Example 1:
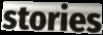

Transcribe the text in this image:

stories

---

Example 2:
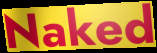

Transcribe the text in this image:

Naked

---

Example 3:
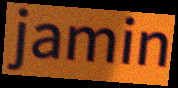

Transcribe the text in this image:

jamin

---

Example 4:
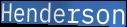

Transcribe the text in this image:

Henderson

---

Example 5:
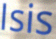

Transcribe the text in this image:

Isis